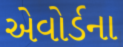
એવોર્ડના